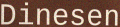
Dinesen